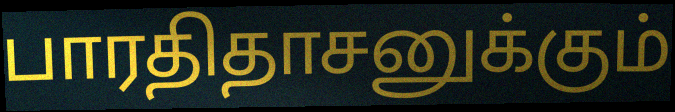
பாரதிதாசனுக்கும்